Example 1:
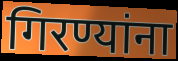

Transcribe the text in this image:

गिरण्यांना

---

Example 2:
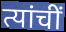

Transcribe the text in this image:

त्यांचीं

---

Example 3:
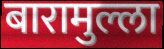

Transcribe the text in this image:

बारामुल्ला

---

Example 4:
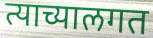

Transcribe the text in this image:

त्याच्यालगत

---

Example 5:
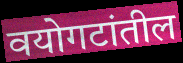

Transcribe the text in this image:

वयोगटांतील